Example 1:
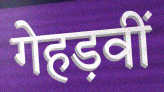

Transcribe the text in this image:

गेहड़वीं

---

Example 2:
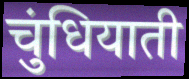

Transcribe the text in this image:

चुंधियाती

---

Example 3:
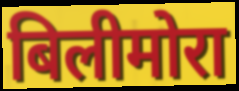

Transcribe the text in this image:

बिलीमोरा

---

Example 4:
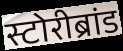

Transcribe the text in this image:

स्टोरीब्रांड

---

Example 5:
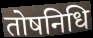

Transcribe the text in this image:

तोषनिधि